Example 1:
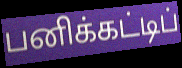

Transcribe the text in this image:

பனிக்கட்டிப்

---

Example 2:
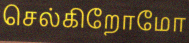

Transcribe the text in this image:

செல்கிறோமோ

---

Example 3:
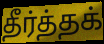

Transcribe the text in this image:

தீர்த்தக்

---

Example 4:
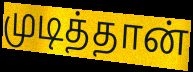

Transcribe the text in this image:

முடித்தான்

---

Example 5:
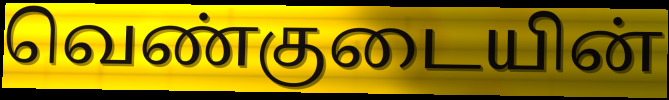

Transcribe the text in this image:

வெண்குடையின்